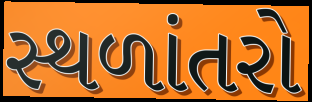
સ્થળાંતરો